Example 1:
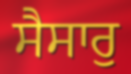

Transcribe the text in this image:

ਸੈਸਾਰੁ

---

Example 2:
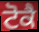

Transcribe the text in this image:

ਟੋਕੈ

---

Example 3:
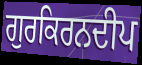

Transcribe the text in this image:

ਗੁਰਕਿਰਨਦੀਪ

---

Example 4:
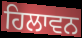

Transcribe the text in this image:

ਹਿਲਾਵਨ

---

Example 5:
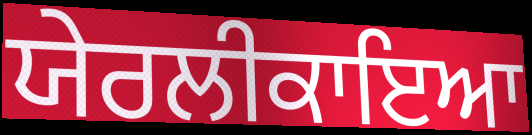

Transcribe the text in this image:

ਯੇਰਲੀਕਾਇਆ